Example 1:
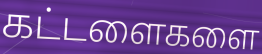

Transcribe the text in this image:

கட்டளைகளை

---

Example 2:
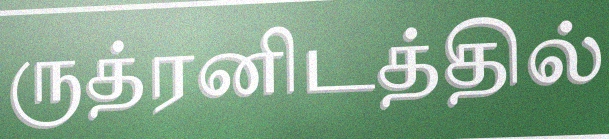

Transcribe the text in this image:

ருத்ரனிடத்தில்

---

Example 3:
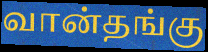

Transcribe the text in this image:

வான்தங்கு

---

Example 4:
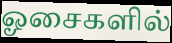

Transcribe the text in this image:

ஓசைகளில்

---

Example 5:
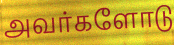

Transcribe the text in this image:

அவர்களோடு